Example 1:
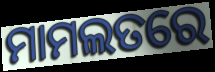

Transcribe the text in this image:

ମାମଲତରେ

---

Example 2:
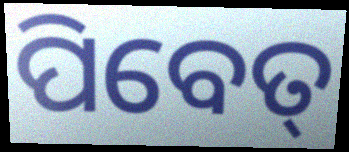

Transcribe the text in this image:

ପିବେତ୍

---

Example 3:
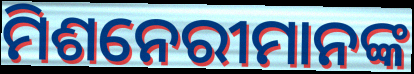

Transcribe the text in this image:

ମିଶନେରୀମାନଙ୍କ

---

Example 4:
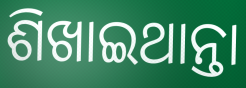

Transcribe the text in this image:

ଶିଖାଇଥାନ୍ତା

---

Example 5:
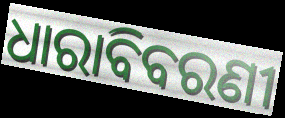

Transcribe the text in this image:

ଧାରାବିବରଣୀ